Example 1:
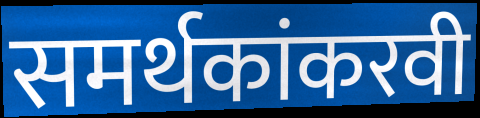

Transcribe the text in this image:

समर्थकांकरवी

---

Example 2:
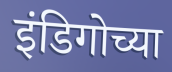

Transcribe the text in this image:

इंडिगोच्या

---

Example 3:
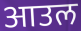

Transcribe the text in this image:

आउल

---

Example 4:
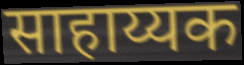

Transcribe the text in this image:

साहाय्यक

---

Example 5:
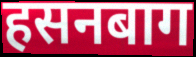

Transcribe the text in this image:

हसनबाग